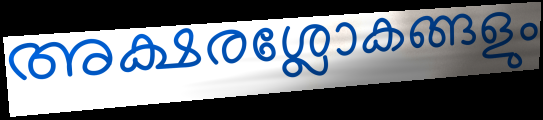
അക്ഷരശ്ലോകങ്ങളും